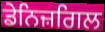
ਡੇਨਿਜ਼ਗਿਲ